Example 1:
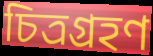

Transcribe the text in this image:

চিত্ৰগ্ৰহণ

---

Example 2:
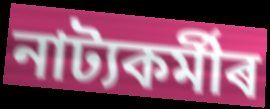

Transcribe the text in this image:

নাট্যকৰ্মীৰ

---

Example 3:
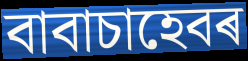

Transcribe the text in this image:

বাবাচাহেবৰ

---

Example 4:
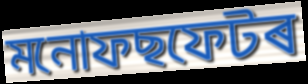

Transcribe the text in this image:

মনোফছফেটৰ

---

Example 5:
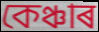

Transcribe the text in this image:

কেঞ্চাৰ